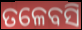
ତଳେବସି